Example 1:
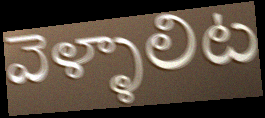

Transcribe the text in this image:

వెళ్ళాలిట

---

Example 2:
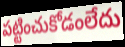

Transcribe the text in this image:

పట్టించుకోడంలేదు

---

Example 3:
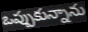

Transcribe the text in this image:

ఒప్పుకున్నాను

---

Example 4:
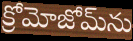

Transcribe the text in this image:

క్రోమోజోమ్‌ను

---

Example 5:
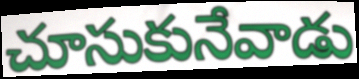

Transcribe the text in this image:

చూసుకునేవాడు